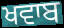
ਖਵਾਬ